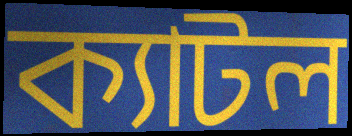
ক্যাটল